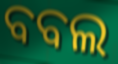
ବବଲ